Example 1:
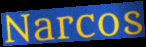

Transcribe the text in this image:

Narcos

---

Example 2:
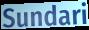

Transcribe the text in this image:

Sundari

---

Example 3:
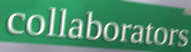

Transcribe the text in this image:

collaborators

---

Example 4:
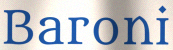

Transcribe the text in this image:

Baroni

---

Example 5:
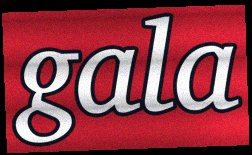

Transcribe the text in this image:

gala